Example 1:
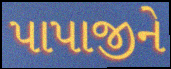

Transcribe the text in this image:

પાપાજીને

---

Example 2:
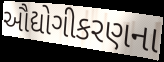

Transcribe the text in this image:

ઔદ્યોગીકરણના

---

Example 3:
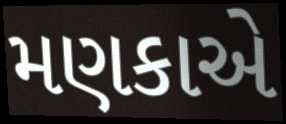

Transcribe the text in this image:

મણકાએ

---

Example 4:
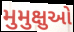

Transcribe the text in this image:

મુમુક્ષુઓ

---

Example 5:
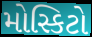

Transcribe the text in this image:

મોસ્કિટો